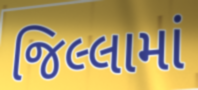
જિલ્લામાં